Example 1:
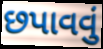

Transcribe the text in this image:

છપાવવું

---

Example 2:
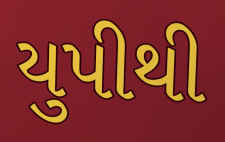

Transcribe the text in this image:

યુપીથી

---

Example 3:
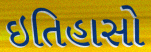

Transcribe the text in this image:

ઇતિહાસો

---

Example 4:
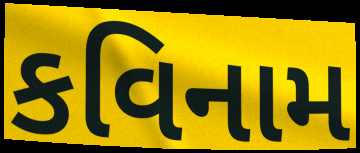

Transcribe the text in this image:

કવિનામ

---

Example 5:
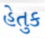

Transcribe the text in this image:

હેતુક